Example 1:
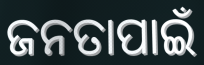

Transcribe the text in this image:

ଜନତାପାଇଁ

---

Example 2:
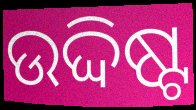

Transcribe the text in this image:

ଉଦ୍ଦିଷ୍ଟ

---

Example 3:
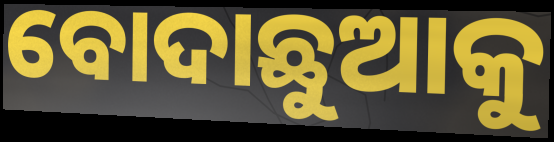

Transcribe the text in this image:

ବୋଦାଛୁଆକୁ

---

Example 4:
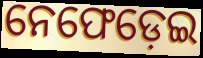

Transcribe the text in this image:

ନେଫେଡ଼େଇ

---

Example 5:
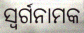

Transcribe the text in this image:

ସ୍ଵର୍ଗନାମକ